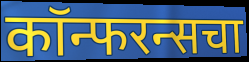
कॉन्फरन्सचा